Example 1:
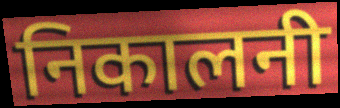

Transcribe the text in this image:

निकालनी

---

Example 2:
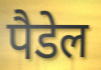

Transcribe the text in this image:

पैडेल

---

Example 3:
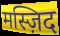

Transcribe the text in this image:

मस्ज़िद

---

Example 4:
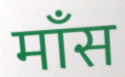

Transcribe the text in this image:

माँस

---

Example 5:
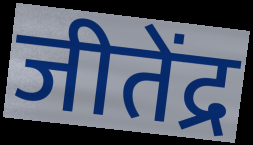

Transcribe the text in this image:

जीतेंद्र